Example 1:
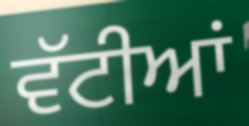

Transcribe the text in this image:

ਵੱਟੀਆਂ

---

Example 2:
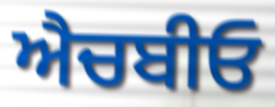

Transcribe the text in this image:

ਐਚਬੀਓ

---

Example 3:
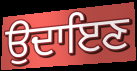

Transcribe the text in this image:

ਉਦਾਇਣ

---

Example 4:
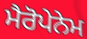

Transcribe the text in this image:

ਮੈਰੋਪੇਨੇਮ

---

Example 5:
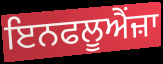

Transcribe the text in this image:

ਇਨਫਲੂਐਂਜ਼ਾ